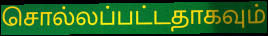
சொல்லப்பட்டதாகவும்